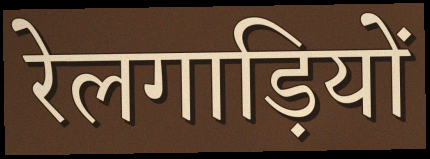
रेलगाड़ियों